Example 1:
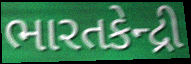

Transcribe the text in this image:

ભારતકેન્દ્રી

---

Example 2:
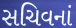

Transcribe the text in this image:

સચિવનાં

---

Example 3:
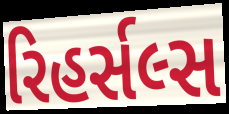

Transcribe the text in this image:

રિહર્સલ્સ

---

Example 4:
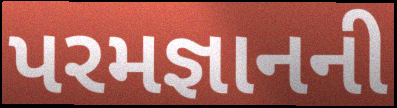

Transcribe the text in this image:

પરમજ્ઞાનની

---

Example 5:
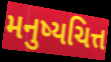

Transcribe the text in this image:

મનુષ્યચિત્ત